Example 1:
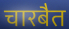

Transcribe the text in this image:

चारबैत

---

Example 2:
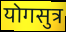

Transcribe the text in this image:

योगसुत्र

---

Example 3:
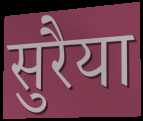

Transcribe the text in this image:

सुरैया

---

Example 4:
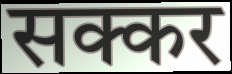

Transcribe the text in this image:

सक्कर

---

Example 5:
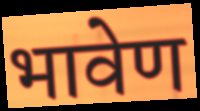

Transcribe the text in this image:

भावेण